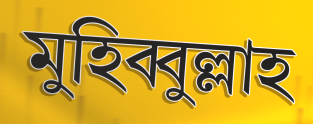
মুহিব্বুল্লাহ